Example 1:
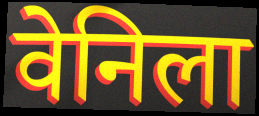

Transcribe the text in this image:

वेनिला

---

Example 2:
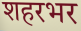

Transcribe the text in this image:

शहरभर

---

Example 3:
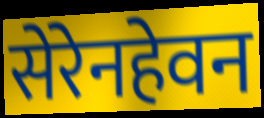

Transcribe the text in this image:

सेरेनहेवन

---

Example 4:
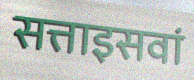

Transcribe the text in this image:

सत्ताइसवां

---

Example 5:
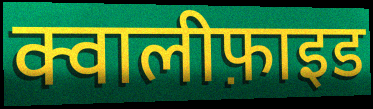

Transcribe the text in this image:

क्वालीफ़ाइड